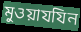
মুওয়াযযিন